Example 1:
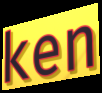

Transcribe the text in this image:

ken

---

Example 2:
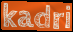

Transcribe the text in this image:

kadri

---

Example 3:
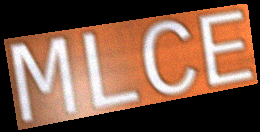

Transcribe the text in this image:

MLCE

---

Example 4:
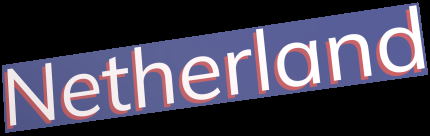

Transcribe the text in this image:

Netherland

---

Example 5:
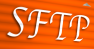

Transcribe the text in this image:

SFTP